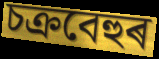
চক্ৰবেহুৰ